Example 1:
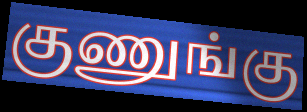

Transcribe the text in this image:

குணுங்கு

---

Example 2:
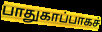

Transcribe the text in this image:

பாதுகாப்பாகச்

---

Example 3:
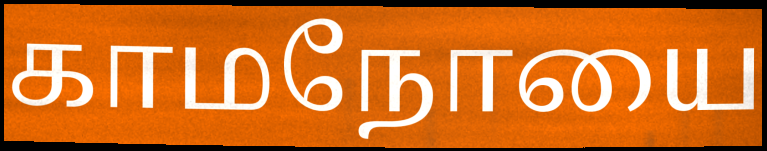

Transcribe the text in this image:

காமநோயை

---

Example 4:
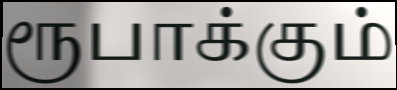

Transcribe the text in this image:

ரூபாக்கும்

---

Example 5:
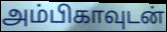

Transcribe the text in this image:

அம்பிகாவுடன்